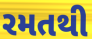
રમતથી